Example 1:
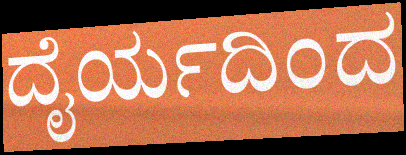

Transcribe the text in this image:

ದೈರ್ಯದಿಂದ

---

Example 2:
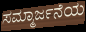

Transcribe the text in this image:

ಸಮ್ಮಾರ್ಜನೆಯ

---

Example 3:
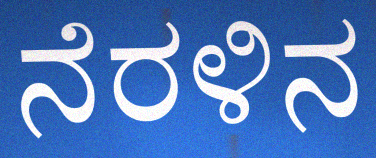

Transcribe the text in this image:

ನೆರಳಿನ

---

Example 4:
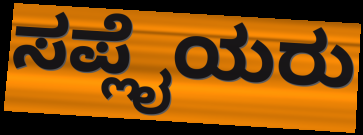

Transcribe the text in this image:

ಸಪ್ಲೈಯರು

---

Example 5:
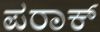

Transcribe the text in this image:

ಪರಾಕ್